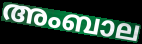
അംബാല